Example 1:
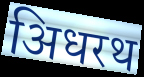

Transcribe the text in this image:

अिधरथ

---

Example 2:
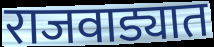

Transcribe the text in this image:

राजवाड्यात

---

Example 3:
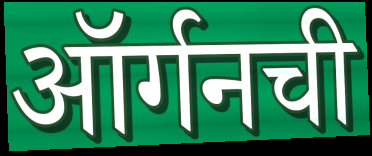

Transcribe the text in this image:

ऑर्गनची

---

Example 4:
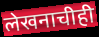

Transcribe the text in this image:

लेखनाचीही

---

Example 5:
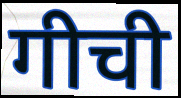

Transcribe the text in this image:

गीची